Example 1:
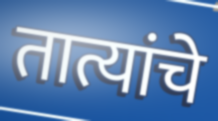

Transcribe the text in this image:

तात्यांचे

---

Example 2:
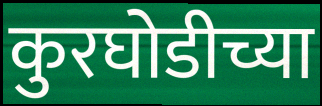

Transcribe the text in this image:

कुरघोडीच्या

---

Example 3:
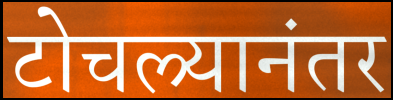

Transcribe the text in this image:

टोचल्यानंतर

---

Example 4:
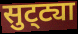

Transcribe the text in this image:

सुट्‌ट्या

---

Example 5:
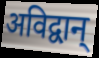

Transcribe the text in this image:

अविद्वान्